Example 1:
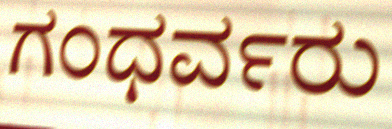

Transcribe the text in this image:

ಗಂಧರ್ವರು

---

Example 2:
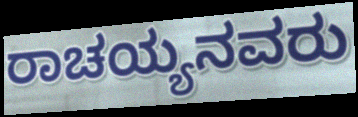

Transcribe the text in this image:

ರಾಚಯ್ಯನವರು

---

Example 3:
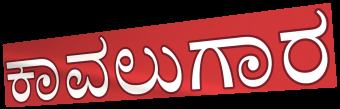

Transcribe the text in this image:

ಕಾವಲುಗಾರ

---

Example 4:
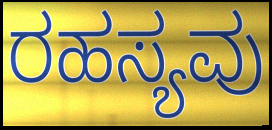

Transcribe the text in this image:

ರಹಸ್ಯವು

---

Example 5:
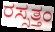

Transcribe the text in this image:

ರಸ್ಸತ್ತಂ